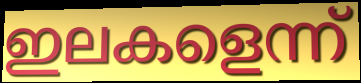
ഇലകളെന്ന്